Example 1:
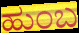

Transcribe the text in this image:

ಹುಂಬ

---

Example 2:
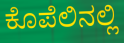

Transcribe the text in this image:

ಕೊಪೆಲಿನಲ್ಲಿ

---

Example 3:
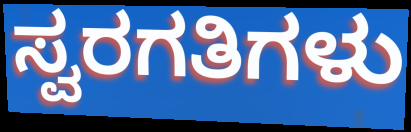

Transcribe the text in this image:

ಸ್ವರಗತಿಗಳು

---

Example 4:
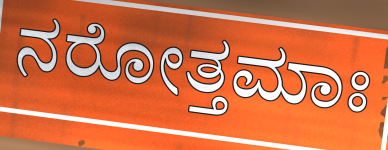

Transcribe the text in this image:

ನರೋತ್ತಮಾಃ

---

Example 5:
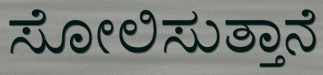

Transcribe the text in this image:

ಸೋಲಿಸುತ್ತಾನೆ